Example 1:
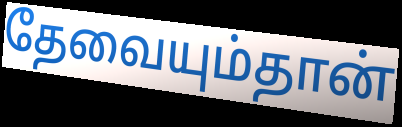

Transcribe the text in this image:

தேவையும்தான்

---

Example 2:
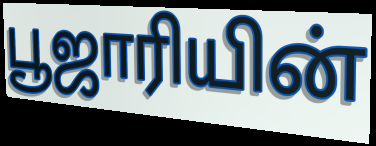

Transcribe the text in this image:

பூஜாரியின்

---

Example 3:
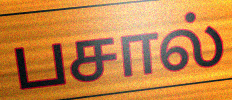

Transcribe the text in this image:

பசால்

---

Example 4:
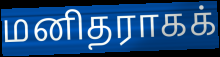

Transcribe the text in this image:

மனிதராகக்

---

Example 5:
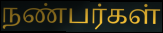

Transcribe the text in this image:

நண்பர்கள்